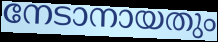
നേടാനായതും